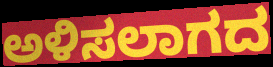
ಅಳಿಸಲಾಗದ